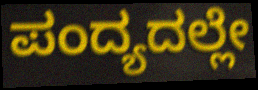
ಪಂದ್ಯದಲ್ಲೇ